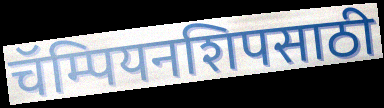
चॅम्पियनशिपसाठी